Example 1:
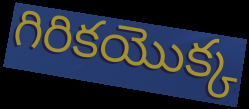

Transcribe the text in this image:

గిరికయొక్క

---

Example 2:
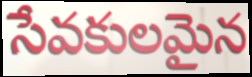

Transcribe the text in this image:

సేవకులమైన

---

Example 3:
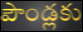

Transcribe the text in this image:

పౌండ్లకు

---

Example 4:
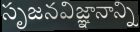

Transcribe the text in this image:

సృజనవిజ్ఞానాన్ని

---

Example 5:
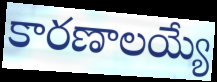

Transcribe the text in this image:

కారణాలయ్యే